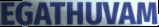
EGATHUVAM